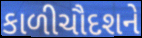
કાળીચૌદશને